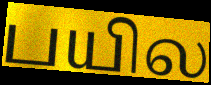
பயில